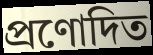
প্ৰণোদিত